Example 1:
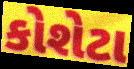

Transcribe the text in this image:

કોશેટા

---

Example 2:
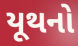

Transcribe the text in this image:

યૂથનો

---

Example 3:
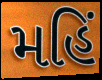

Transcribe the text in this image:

મહિં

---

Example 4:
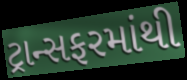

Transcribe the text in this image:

ટ્રાન્સફરમાંથી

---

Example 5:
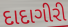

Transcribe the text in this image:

દાદાગીરી